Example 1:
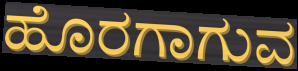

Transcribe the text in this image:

ಹೊರಗಾಗುವ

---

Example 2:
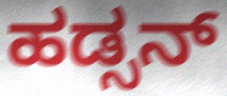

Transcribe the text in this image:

ಹಡ್ಸನ್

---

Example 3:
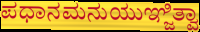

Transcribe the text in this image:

ಪಧಾನಮನುಯುಞ್ಜಿತ್ವಾ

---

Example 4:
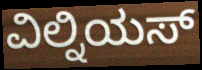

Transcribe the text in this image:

ವಿಲ್ನಿಯಸ್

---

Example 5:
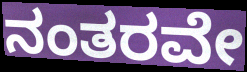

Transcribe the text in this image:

ನಂತರವೇ